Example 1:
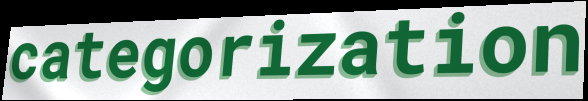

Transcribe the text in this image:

categorization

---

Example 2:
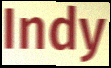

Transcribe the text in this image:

Indy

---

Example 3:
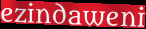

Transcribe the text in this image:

ezindaweni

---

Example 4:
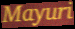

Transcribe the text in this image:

Mayuri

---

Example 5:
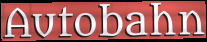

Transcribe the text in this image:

Autobahn